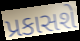
પ્રકાસશે